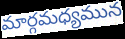
మార్గమధ్యమున